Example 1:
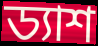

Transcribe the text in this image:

ড্যাশ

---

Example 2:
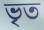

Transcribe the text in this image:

ভৃত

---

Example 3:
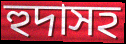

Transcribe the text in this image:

হুদাসহ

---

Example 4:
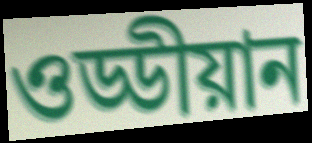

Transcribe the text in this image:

ওড্ডীয়ান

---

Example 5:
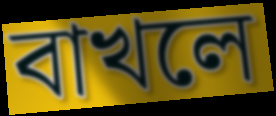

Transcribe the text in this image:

বাখলে